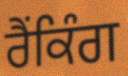
ਰੈੰਕਿੰਗ